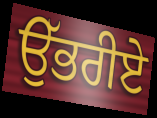
ਉੱਭਰੀਏ